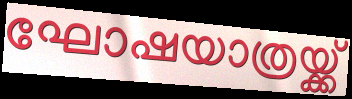
ഘോഷയാത്രയ്ക്ക്